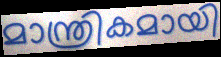
മാന്ത്രികമായി